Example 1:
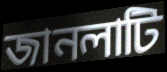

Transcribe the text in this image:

জানলাটি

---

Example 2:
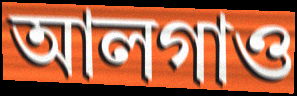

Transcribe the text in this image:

আলগাও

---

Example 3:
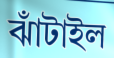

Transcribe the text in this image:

ঝাঁটাইল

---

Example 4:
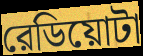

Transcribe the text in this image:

রেডিয়োটা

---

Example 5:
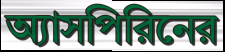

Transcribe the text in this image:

অ্যাসপিরিনের